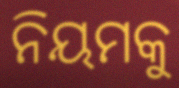
ନିୟମକୁ